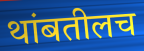
थांबतीलच